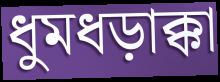
ধুমধড়াক্কা